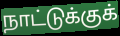
நாட்டுக்குக்